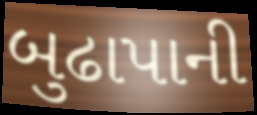
બુઢાપાની